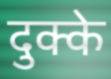
दुक्के